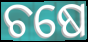
ଚଷେ